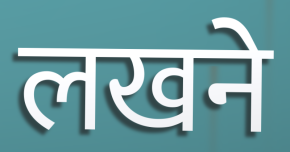
लखने